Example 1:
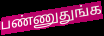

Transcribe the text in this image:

பண்ணுதுங்க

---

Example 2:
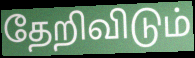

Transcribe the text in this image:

தேறிவிடும்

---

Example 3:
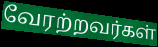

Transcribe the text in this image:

வேரற்றவர்கள்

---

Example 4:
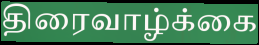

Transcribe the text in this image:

திரைவாழ்க்கை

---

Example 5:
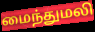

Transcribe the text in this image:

மைந்துமலி